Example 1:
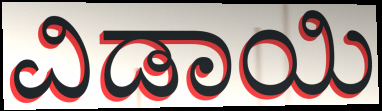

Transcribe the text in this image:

ವಿಡಾಯಿ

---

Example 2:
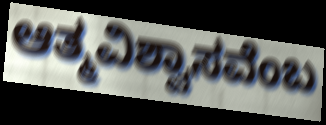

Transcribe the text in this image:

ಆತ್ಮವಿಶ್ವಾಸವೆಂಬ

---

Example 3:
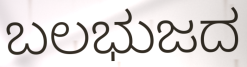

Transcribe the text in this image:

ಬಲಭುಜದ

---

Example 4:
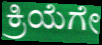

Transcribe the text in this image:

ಕ್ರಿಯೆಗೇ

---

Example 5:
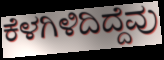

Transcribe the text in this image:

ಕೆಳಗಿಳಿದಿದ್ದೆವು